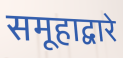
समूहाद्वारे